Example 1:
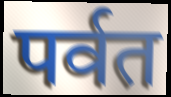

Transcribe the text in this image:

पर्वत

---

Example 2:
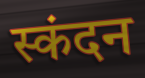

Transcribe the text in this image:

स्कंदन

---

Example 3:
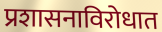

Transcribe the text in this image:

प्रशासनाविरोधात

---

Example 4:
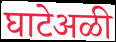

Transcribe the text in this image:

घाटेअळी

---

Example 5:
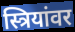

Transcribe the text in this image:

स्त्रियांवर